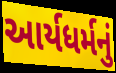
આર્યધર્મનું